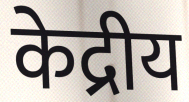
केद्रीय